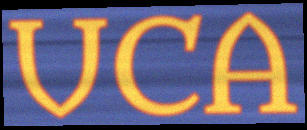
UCA